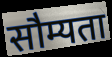
सौम्यता